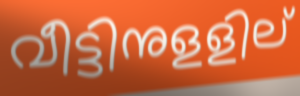
വീട്ടിനുളളില്